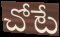
చోటే